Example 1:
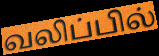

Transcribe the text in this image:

வலிப்பில்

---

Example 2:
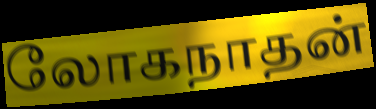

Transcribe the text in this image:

லோகநாதன்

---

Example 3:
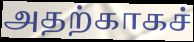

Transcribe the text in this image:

அதற்காகச்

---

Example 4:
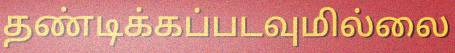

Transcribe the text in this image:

தண்டிக்கப்படவுமில்லை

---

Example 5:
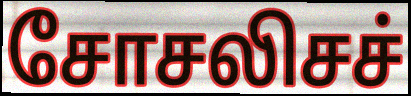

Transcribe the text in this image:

சோசலிசச்